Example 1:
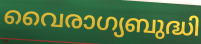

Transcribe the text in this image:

വൈരാഗ്യബുദ്ധി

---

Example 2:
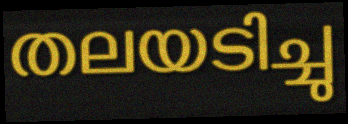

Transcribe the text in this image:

തലയടിച്ചു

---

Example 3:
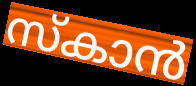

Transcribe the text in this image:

സ്കാൻ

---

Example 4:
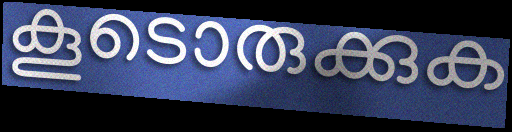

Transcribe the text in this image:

കൂടൊരുക്കുക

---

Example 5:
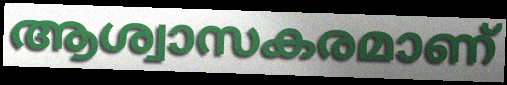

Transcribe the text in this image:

ആശ്വാസകരമാണ്